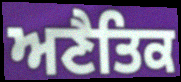
ਅਣੈਤਿਕ